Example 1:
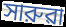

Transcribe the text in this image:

সাৰুৱা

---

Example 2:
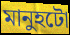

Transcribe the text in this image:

মানুহটো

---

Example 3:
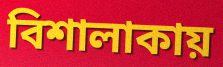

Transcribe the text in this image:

বিশালাকায়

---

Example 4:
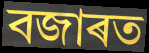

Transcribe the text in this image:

বজাৰত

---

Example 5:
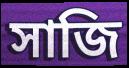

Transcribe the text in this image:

সাজি